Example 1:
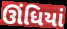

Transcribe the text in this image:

ઊંધિયાં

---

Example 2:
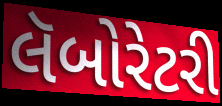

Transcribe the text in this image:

લૅબોરેટરી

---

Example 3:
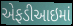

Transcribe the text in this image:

એફડીઆઇમાં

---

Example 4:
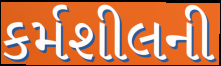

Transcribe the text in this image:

કર્મશીલની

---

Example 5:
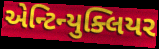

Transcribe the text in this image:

એન્ટિન્યુક્લિયર